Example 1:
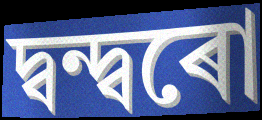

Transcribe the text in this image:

দ্বন্দ্বৰো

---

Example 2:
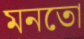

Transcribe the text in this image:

মনতো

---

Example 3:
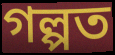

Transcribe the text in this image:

গল্পত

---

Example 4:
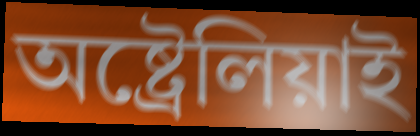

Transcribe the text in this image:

অষ্ট্ৰেলিয়াই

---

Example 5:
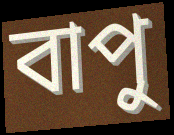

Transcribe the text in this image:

বাপু